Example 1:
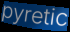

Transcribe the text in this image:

pyretic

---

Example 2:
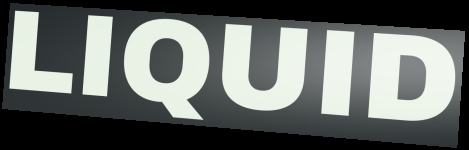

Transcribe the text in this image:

LIQUID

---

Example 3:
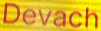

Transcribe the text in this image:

Devach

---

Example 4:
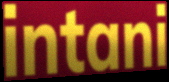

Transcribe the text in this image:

intani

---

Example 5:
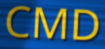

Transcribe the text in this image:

CMD